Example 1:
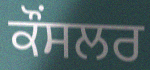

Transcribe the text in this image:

ਕੌੰਸਲਰ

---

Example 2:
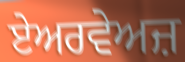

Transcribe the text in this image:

ਏਅਰਵੇਅਜ਼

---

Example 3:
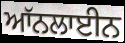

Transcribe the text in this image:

ਆੱਨਲਾਈਨ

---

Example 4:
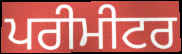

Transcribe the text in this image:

ਪਰੀਮੀਟਰ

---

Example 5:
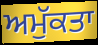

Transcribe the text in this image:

ਅਮੁੱਕਤਾ